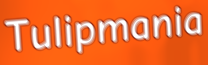
Tulipmania